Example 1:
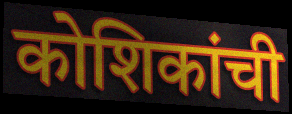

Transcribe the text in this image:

कोशिकांची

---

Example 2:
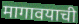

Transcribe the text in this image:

मागावयाची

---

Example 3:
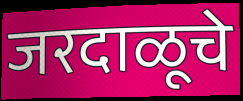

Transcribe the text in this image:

जरदाळूचे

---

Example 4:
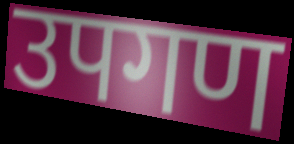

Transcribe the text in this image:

उपगण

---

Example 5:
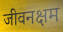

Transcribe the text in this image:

जीवनक्षम